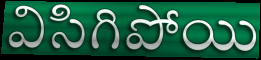
విసిగిపోయి